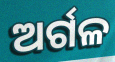
ଅର୍ଗଳ